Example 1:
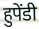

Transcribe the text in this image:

हुपेंडी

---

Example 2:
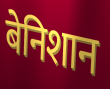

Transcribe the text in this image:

बेनिशान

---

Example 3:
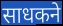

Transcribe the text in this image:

साधकने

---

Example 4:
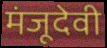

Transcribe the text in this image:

मंजूदेवी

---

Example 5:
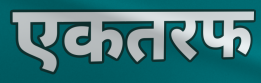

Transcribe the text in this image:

एकतरफ